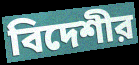
বিদেশীর